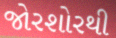
જોરશોરથી